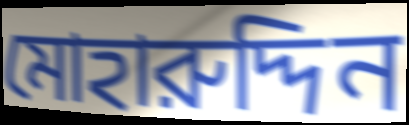
মোহারুদ্দিন